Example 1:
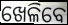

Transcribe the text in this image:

ଖେଳିବେ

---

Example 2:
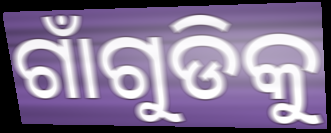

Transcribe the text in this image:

ଗାଁଗୁଡିକୁ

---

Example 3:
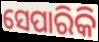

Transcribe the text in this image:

ସେପାରିକି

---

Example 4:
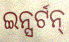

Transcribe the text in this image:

ଇନ୍ସର୍ଟନ୍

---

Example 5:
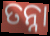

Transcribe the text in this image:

ତନ୍ନା